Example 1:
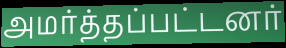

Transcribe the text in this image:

அமர்த்தப்பட்டனர்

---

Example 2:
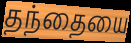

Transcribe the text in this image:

தந்தையை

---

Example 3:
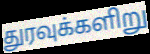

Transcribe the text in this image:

துரவுக்களிறு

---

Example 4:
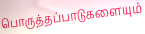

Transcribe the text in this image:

பொருத்தப்பாடுகளையும்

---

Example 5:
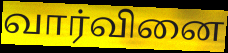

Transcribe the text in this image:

வார்வினை